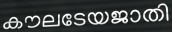
കൗലടേയജാതി